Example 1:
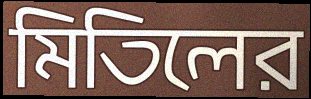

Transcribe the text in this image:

মিতিলের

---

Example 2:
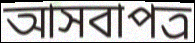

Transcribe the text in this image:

আসবাপত্র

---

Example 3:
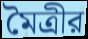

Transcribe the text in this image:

মৈত্রীর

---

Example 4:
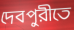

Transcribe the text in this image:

দেবপুরীতে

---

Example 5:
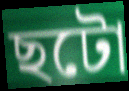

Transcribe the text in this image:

ছটো